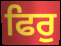
ਫਿਰੁ